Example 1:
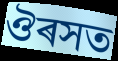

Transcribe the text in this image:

ঔৰসত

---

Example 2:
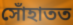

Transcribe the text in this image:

সোঁহাতত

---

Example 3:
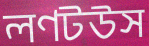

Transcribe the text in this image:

লণটউস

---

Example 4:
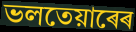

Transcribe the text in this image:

ভলতেয়াৰেৰ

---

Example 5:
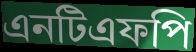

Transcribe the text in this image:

এনটিএফপি